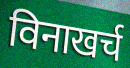
विनाखर्च